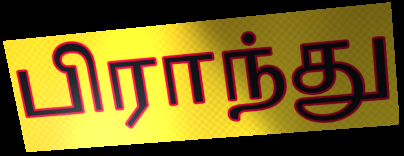
பிராந்து